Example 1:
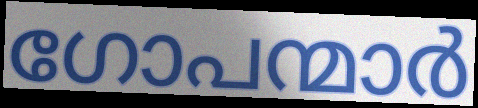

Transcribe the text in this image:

ഗോപന്മാർ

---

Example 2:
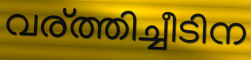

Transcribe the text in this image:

വര്ത്തിച്ചീടിന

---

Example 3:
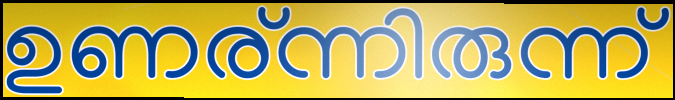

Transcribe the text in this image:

ഉണര്ന്നിരുന്ന്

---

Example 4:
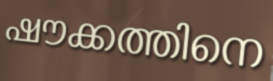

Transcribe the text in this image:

ഷൗക്കത്തിനെ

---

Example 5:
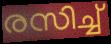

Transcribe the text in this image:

രസിച്ച്